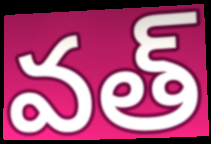
వత్